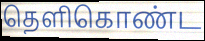
தெளிகொண்ட